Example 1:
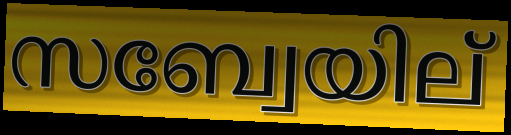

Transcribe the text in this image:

സബ്വേയില്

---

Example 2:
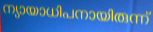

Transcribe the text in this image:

ന്യായാധിപനായിരുന്ന്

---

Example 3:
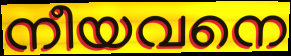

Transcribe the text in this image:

നീയവനെ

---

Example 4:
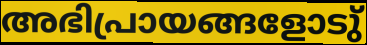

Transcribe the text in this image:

അഭിപ്രായങ്ങളോടു്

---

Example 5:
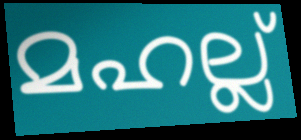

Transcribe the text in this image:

മഹല്ല്